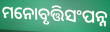
ମନୋବୃତ୍ତିସଂପନ୍ନ